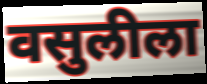
वसुलीला